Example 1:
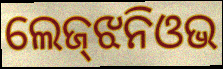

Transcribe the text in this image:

ଲେଜ୍‌ଝନିଓଭ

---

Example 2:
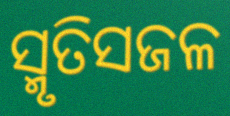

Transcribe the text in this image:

ସ୍ମୃତିସଜଳ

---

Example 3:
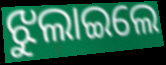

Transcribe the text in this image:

ଝୁଲାଇଲେ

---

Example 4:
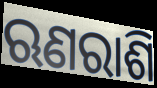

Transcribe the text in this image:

ଋଣରାଶି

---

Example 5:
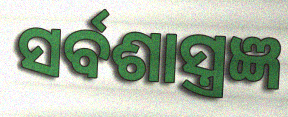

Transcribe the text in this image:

ସର୍ବଶାସ୍ତ୍ରଜ୍ଞ